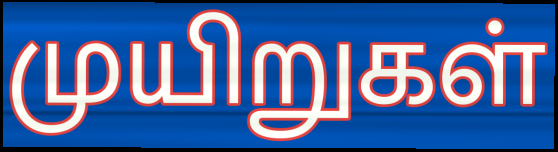
முயிறுகள்